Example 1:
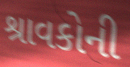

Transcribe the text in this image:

શ્રાવકોની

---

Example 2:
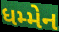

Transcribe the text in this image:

ધમ્મેન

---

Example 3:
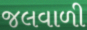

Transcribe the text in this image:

જલવાળી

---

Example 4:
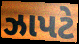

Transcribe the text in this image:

ઝાપટે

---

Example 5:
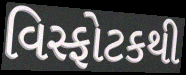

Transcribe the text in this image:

વિસ્ફોટકથી